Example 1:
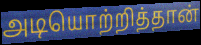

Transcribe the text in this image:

அடியொற்றித்தான்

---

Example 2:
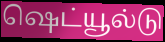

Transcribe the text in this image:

ஷெட்யூல்டு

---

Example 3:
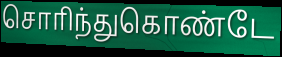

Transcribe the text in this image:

சொரிந்துகொண்டே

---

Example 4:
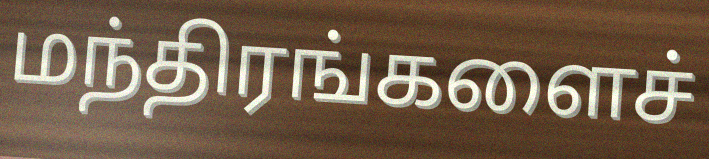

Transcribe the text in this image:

மந்திரங்களைச்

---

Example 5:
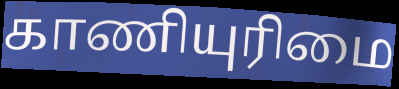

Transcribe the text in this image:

காணியுரிமை